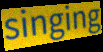
singing